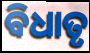
ବିଧାତୃ